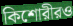
কিশোরীরও